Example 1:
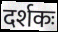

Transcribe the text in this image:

दर्शकः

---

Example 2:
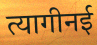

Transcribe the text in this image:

त्यागीनई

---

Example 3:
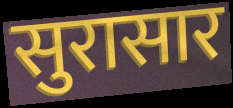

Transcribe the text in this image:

सुरासार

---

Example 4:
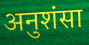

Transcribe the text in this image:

अनुशंसा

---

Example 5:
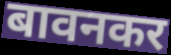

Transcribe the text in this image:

बावनकर